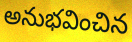
అనుభవించిన